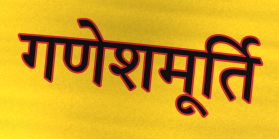
गणेशमूर्ति